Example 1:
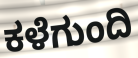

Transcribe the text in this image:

ಕಳೆಗುಂದಿ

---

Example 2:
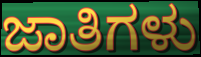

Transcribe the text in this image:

ಜಾತಿಗಳು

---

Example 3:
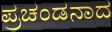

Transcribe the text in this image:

ಪ್ರಚಂಡನಾದ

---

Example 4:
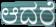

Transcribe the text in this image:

ಆದರೆ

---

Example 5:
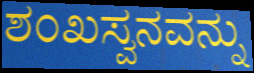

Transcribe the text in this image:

ಶಂಖಸ್ವನವನ್ನು